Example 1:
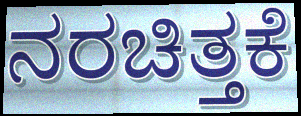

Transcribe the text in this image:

ನರಚಿತ್ತಕೆ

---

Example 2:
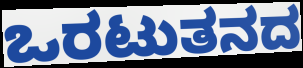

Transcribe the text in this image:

ಒರಟುತನದ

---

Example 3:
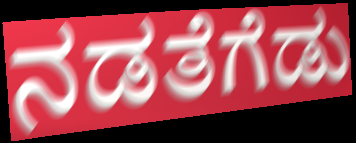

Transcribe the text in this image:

ನಡತೆಗೆಡು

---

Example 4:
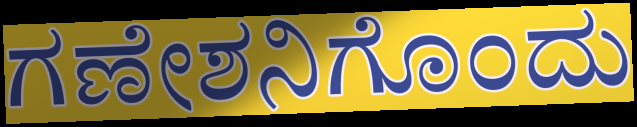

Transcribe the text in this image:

ಗಣೇಶನಿಗೊಂದು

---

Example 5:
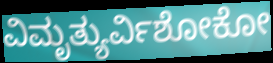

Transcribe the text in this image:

ವಿಮೃತ್ಯುರ್ವಿಶೋಕೋ